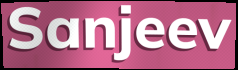
Sanjeev